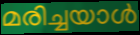
മരിച്ചയാൾ